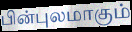
பின்புலமாகும்